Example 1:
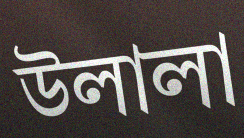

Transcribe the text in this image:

উলালা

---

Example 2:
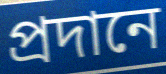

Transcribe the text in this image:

প্রদানে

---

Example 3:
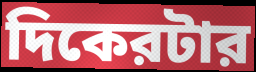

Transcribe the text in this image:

দিকেরটার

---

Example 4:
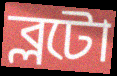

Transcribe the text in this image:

ব্লটো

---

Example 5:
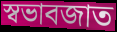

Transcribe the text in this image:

স্বভাবজাত